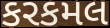
કરકમલ